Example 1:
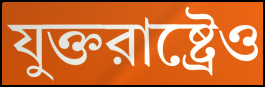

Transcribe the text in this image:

যুক্তরাষ্ট্রেও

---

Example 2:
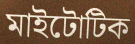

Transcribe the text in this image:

মাইটোটিক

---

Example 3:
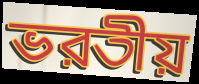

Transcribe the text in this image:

ভরতীয়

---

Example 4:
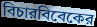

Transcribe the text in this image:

বিচারবিবেকের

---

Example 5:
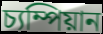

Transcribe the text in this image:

চ্যম্পিয়ান